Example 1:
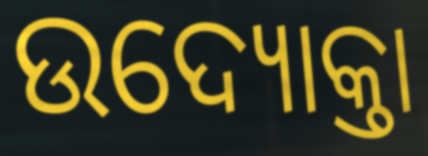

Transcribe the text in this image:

ଉଦ୍ୟୋକ୍ତା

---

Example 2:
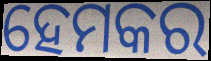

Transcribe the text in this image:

ହେମକର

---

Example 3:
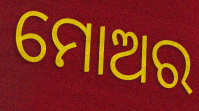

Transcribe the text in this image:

ମୋଅର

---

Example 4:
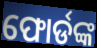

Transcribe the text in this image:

ଫୋର୍ଡଙ୍କ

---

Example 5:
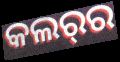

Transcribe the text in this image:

କଲର୍‌ର